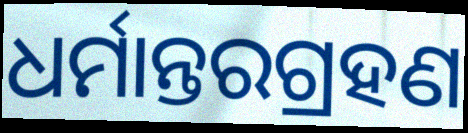
ଧର୍ମାନ୍ତରଗ୍ରହଣ